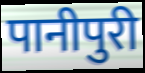
पानीपुरी